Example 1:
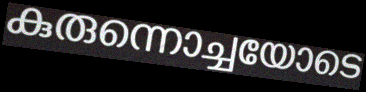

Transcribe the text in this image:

കുരുന്നൊച്ചയോടെ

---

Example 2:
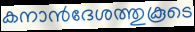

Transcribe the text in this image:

കനാൻദേശത്തുകൂടെ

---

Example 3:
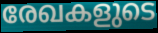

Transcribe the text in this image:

രേഖകളുടെ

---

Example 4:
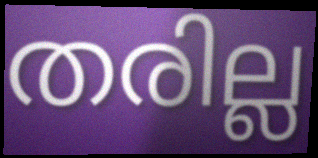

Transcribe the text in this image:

തരില്ല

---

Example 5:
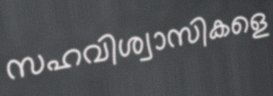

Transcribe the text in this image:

സഹവിശ്വാസികളെ